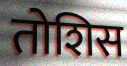
तोशिस